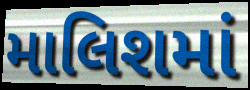
માલિશમાં